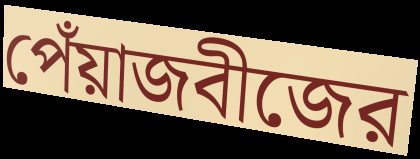
পেঁয়াজবীজের